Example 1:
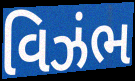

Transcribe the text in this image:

વિઝંભ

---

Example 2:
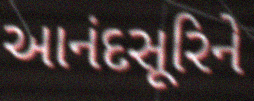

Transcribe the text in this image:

આનંદસૂરિને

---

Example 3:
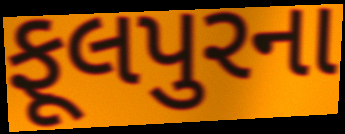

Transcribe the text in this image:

ફૂલપુરના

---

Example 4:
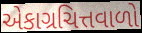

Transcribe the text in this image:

એકાગ્રચિત્તવાળો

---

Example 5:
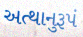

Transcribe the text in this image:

અત્થાનુરૂપં